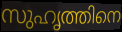
സുഹൃത്തിനെ